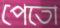
পেতো